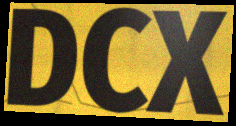
DCX